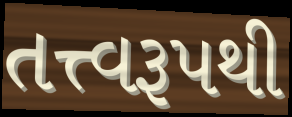
તત્ત્વરૂપથી